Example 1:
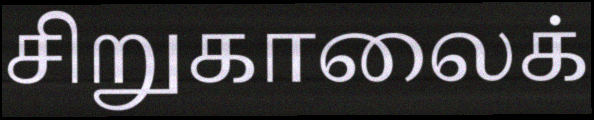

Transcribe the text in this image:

சிறுகாலைக்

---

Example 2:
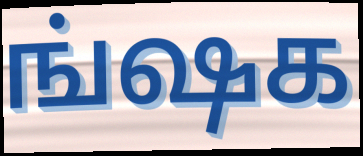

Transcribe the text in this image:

ங்ஷக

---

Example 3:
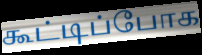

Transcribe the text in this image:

கூட்டிப்போக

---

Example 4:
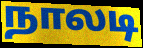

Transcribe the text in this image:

நாலடி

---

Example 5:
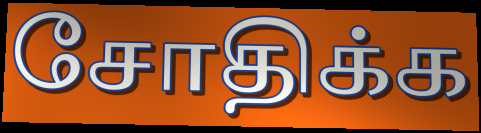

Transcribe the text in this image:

சோதிக்க